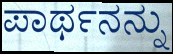
ಪಾರ್ಥನನ್ನು